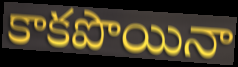
కాకపొయినా